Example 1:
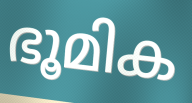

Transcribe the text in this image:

ഭൂമിക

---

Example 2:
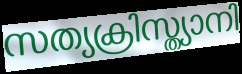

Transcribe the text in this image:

സത്യക്രിസ്ത്യാനി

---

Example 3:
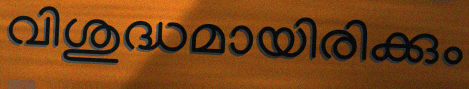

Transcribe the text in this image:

വിശുദ്ധമായിരിക്കും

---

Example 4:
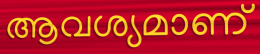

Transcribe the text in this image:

ആവശ്യമാണ്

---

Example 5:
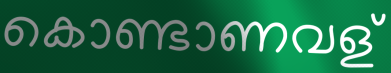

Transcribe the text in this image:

കൊണ്ടാണവള്